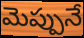
మెప్పునే